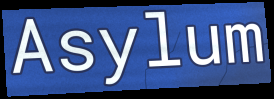
Asylum